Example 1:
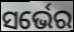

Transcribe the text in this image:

ସର୍ଭେର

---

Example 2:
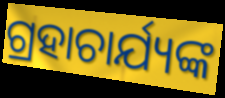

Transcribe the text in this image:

ଗ୍ରହାଚାର୍ଯ୍ୟଙ୍କ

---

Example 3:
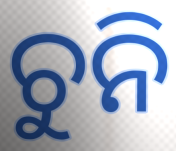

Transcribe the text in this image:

ଚୁନି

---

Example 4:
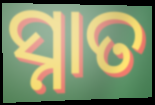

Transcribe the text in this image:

ସ୍ନାତ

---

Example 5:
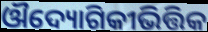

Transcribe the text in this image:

ଔଦ୍ୟୋଗିକୀଭିତ୍ତିକ